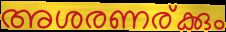
അശരണര്ക്കും